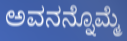
ಅವನನ್ನೊಮ್ಮೆ